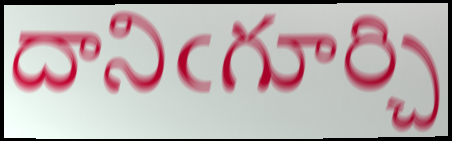
దానిఁగూర్చి